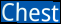
Chest